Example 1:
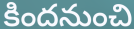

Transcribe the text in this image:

కిందనుంచి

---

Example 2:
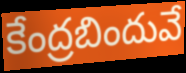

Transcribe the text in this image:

కేంద్రబిందువే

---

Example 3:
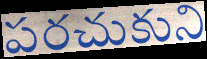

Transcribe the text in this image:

పరచుకుని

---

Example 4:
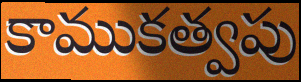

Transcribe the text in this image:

కాముకత్వపు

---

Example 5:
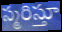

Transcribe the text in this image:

స్మరిస్తూ